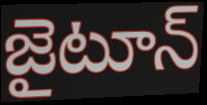
జైటూన్